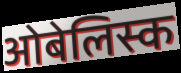
ओबेलिस्क